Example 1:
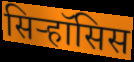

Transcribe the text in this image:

सिऱ्हॉसिस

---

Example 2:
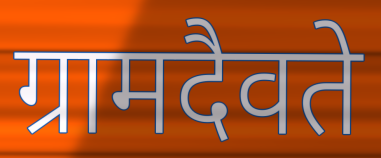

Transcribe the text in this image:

ग्रामदैवते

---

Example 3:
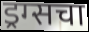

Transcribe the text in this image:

ड्रग्सचा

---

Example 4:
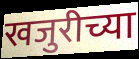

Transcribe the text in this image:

खजुरीच्या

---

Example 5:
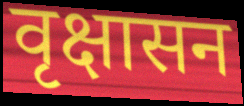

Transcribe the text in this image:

वृक्षासन